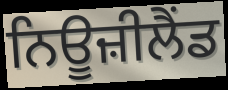
ਨਿਊਜ਼ੀਲੈੰਡ